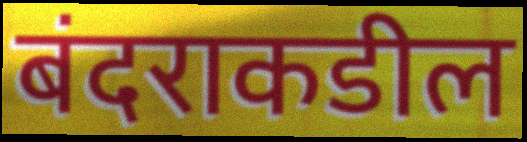
बंदराकडील